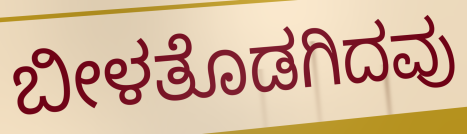
ಬೀಳತೊಡಗಿದವು